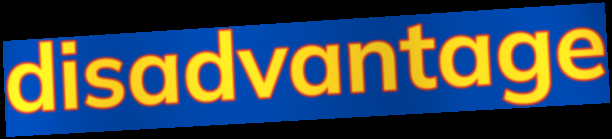
disadvantage